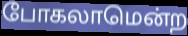
போகலாமென்ற